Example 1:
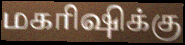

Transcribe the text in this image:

மகரிஷிக்கு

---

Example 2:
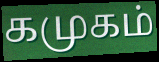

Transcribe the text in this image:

கமுகம்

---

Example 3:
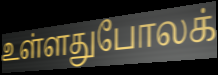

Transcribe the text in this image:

உள்ளதுபோலக்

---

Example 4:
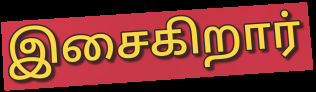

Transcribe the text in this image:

இசைகிறார்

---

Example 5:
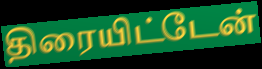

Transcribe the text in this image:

திரையிட்டேன்